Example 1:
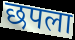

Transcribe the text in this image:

छपला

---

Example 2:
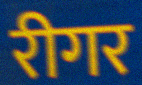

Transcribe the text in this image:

रीगर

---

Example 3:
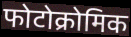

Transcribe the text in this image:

फोटोक्रोमिक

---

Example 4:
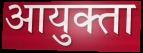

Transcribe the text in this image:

आयुक्ता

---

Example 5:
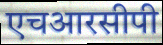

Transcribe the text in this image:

एचआरसीपी